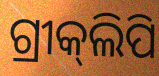
ଗ୍ରୀକ୍‌ଲିପି